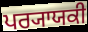
ਪਰ੍ਯਾਯਕੀ